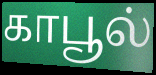
காபூல்